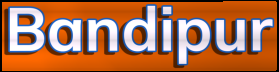
Bandipur